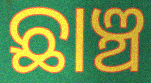
ଛାଞ୍ଚ